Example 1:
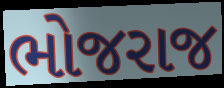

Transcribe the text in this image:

ભોજરાજ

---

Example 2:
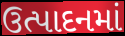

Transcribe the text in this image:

ઉત્પાદનમાં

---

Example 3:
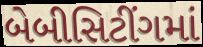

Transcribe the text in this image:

બેબીસિટીંગમાં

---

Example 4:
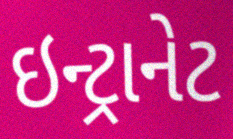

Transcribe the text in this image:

ઇન્ટ્રાનેટ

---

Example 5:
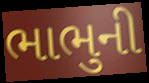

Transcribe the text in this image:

ભાભુની